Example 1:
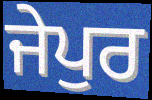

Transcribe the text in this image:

ਜੇਪੁਰ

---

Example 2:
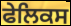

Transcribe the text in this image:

ਫੇਲਿਕਸ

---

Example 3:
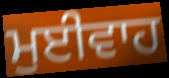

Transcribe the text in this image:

ਮੁਈਵਾਹ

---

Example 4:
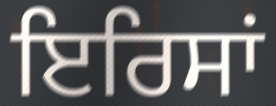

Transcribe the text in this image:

ਇਰਿਸਾਂ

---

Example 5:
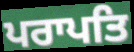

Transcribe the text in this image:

ਪਰਾਪਤਿ